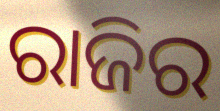
ରାଜିର